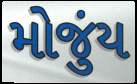
મોજુંય